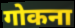
गोकना